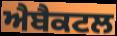
ਐਬੈਕਟਲ